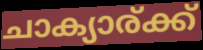
ചാക്യാര്ക്ക്